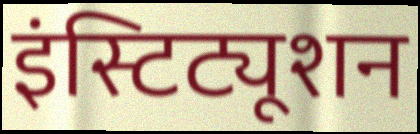
इंस्टिट्यूशन